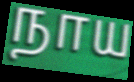
நாய